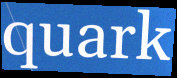
quark